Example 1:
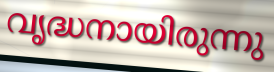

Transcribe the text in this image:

വൃദ്ധനായിരുന്നു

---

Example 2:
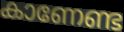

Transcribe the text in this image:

കാണേണ്ട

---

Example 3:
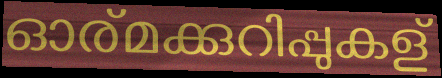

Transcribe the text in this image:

ഓര്മക്കുറിപ്പുകള്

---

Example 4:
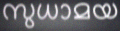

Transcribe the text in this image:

സുധാമയ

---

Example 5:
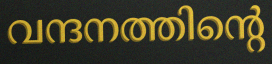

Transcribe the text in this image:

വന്ദനത്തിന്റെ